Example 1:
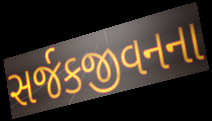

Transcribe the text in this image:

સર્જકજીવનના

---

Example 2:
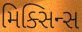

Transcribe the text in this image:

મિક્સિન્સ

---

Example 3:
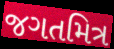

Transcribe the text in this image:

જગતમિત્ર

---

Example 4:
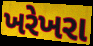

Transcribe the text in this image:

ખરેખરા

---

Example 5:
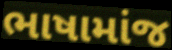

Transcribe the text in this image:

ભાષામાંજ